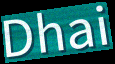
Dhai